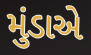
મુંડાએ